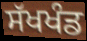
ਸੱਖਖੰਡ